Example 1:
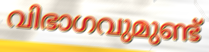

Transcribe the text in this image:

വിഭാഗവുമുണ്ട്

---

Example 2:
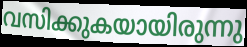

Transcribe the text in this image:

വസിക്കുകയായിരുന്നു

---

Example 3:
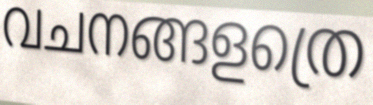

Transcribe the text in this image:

വചനങ്ങളത്രെ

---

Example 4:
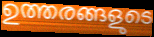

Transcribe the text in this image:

ഉത്തരങ്ങളുടെ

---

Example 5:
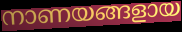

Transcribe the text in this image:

നാണയങ്ങളായ